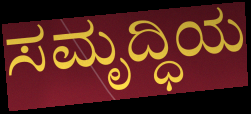
ಸಮೃದ್ಧಿಯ